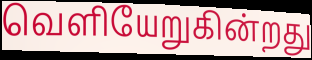
வெளியேறுகின்றது